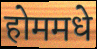
होममधे